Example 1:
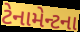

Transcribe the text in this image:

ટેનામેન્ટના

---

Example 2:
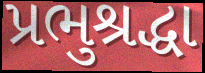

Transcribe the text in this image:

પ્રભુશ્રદ્ધા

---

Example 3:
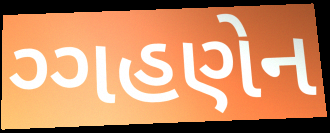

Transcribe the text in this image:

ગ્ગહણેન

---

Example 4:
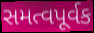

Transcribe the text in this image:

સમત્વપૂર્વક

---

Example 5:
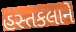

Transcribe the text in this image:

હસ્તકલાને